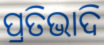
ପ୍ରତିଭାଦି